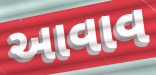
આવાવ